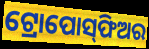
ଟ୍ରୋପୋସ୍‌ଫିଅର